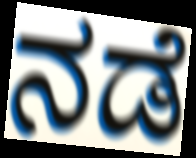
ನಡೆ